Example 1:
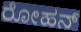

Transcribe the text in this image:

ರೋಹನ್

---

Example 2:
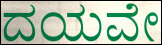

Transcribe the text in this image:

ದಯವೇ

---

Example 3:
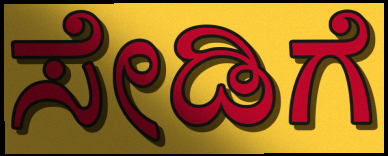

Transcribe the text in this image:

ಸೇಡಿಗೆ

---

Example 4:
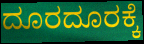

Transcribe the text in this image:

ದೂರದೂರಕ್ಕೆ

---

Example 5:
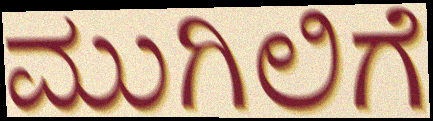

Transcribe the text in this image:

ಮುಗಿಲಿಗೆ